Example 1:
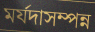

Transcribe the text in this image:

মৰ্যদাসম্পন্ন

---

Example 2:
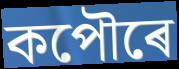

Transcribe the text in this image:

কপৌৰে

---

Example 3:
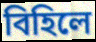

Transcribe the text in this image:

বিহিলে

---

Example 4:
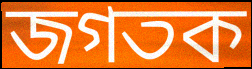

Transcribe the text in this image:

জগতক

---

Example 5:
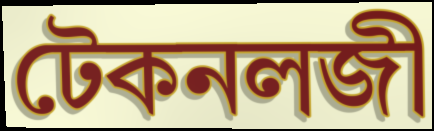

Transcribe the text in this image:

টেকনলজী